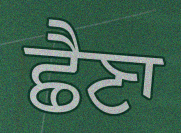
ਛੈਣਾ